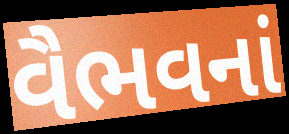
વૈભવનાં